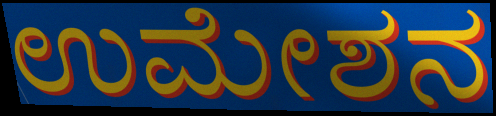
ಉಮೇಶನ